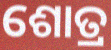
ଶୋତ୍ର